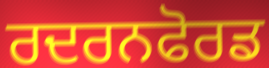
ਰਦਰਨਫੋਰਡ